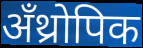
अँथ्रोपिक